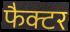
फैक्टर